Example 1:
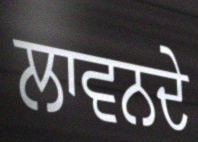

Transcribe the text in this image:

ਲਾਵਨਦੇ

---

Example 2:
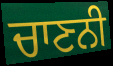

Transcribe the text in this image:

ਚਾਣਨੀ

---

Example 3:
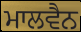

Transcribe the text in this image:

ਮਾਲਵੈਨ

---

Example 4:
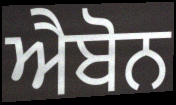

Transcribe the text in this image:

ਐਬੋਨ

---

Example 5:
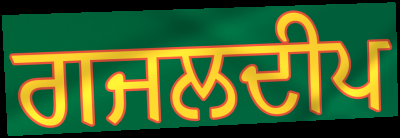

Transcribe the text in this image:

ਗਜਲਦੀਪ